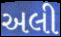
અલી